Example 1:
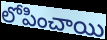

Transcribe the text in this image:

లోపించాయి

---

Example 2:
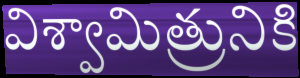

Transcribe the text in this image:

విశ్వామిత్రునికి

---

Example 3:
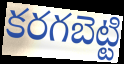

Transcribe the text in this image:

కరగబెట్టి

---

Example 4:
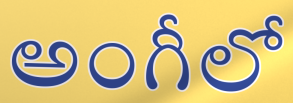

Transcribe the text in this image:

అంగీలో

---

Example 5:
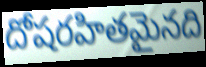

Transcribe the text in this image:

దోషరహితమైనది